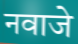
नवाजे